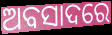
ଅବସାଦରେ